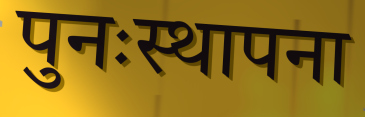
पुनःस्थापना